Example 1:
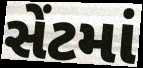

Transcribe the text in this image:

સેંટમાં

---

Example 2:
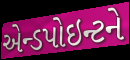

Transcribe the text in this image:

એન્ડપોઇન્ટને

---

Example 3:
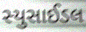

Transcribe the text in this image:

સ્યુસાઈડલ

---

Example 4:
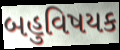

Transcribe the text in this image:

બહુવિષયક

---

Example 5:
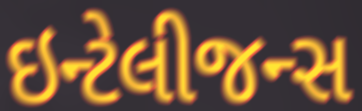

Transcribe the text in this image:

ઇન્ટેલીજન્સ